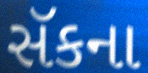
સૅકના